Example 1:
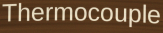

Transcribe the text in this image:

Thermocouple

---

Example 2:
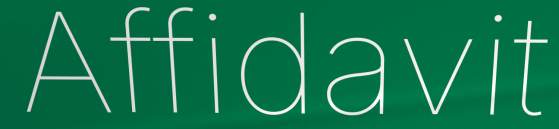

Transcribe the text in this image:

Affidavit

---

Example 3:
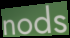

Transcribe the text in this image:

nods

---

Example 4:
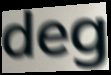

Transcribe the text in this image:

deg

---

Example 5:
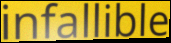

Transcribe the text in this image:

infallible